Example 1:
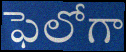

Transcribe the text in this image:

ఫెలోగా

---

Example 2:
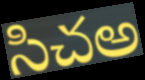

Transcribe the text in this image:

సిచఅ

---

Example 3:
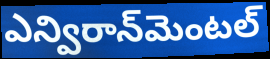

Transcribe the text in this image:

ఎన్విరాన్‌మెంటల్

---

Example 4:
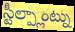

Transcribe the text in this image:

స్టీల్ప్లాంట్ను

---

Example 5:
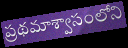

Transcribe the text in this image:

ప్రథమాశ్వాసంలోని